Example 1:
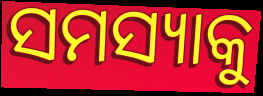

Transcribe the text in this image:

ସମସ୍ଯାକୁ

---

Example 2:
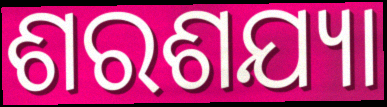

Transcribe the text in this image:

ଶରଶଯ୍ୟା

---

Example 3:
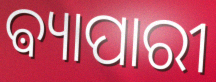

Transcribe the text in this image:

ଵ୍ୟାପାରୀ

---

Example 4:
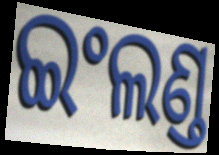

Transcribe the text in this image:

ଇଂଲଣ୍ଡ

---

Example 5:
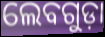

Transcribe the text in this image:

ଲେବଗୁଡ଼ା